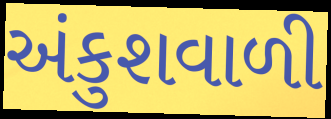
અંકુશવાળી